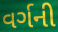
વર્ગની